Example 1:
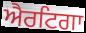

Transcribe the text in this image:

ਐਰਟਿਗਾ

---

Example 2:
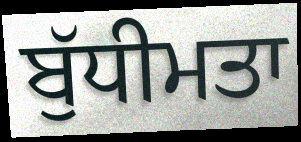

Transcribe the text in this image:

ਬੁੱਧੀਮਤਾ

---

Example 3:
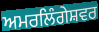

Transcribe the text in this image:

ਅਮਰਲਿੰਗੇਸ਼ਵਰ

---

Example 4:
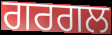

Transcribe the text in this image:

ਗਰਗਲ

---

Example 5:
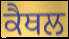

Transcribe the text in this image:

ਕੈਥਲ